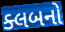
ક્લબનો